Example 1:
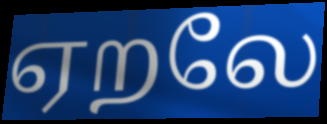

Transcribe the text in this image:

ஏறலே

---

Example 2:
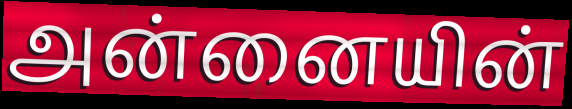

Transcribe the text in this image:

அன்னையின்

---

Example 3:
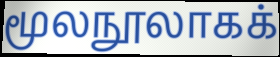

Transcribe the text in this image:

மூலநூலாகக்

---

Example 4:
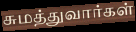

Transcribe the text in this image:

சுமத்துவார்கள்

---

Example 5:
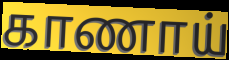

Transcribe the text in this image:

காணாய்